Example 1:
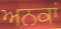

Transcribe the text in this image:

ਅਨਕਾਂ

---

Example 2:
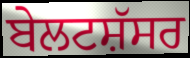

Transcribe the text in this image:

ਬੇਲਟਸ਼ੱਸਰ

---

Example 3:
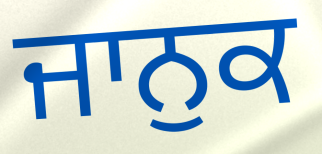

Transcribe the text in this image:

ਜਾਨੁਕ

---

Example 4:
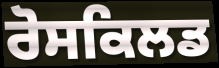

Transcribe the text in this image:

ਰੋਸਕਿਲਡ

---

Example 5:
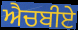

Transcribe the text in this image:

ਐਚਬੀਏ